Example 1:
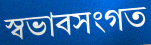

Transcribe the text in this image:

স্বভাবসংগত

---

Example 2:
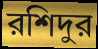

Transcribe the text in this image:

রশিদুর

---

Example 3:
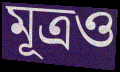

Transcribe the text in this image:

মূত্রও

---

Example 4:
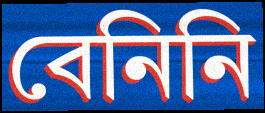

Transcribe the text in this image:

বেনিনি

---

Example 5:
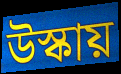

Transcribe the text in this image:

উস্কায়